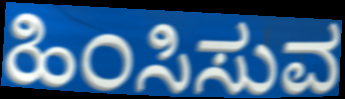
ಹಿಂಸಿಸುವ